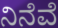
ನಿನೆವೆ